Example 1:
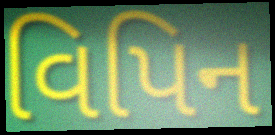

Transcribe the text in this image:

વિપિન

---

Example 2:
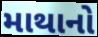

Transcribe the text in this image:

માથાનો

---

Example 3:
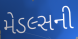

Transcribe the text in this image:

મેડલ્સની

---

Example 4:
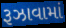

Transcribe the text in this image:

રૂઝાવામાં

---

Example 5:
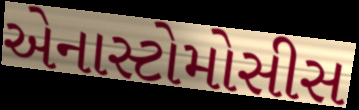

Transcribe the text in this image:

એનાસ્ટોમોસીસ